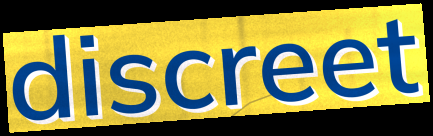
discreet